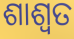
ଶାଶ୍ଵତ